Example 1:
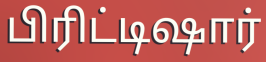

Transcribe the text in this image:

பிரிட்டிஷார்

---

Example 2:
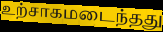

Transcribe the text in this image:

உற்சாகமடைந்தது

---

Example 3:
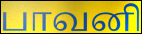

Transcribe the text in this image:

பாவனி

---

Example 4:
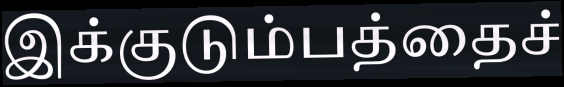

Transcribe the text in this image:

இக்குடும்பத்தைச்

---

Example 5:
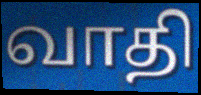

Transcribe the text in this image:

வாதி